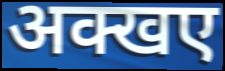
अक्खए